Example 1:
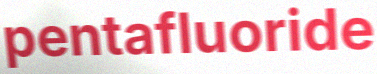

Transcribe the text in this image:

pentafluoride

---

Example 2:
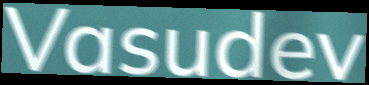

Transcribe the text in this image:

Vasudev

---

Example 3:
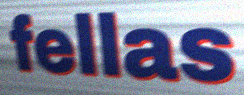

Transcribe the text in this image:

fellas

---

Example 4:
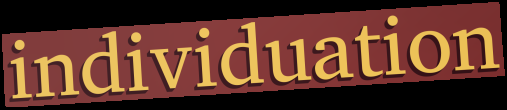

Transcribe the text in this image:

individuation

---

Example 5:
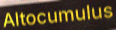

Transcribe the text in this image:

Altocumulus